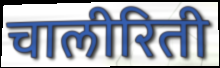
चालीरिती